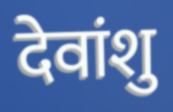
देवांशु